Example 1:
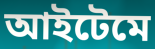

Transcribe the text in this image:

আইটেমে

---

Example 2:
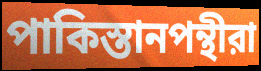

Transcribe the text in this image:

পাকিস্তানপন্থীরা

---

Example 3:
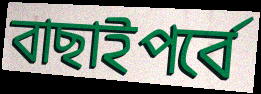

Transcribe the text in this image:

বাছাইপর্বে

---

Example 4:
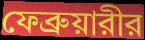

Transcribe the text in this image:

ফেব্রুয়ারীর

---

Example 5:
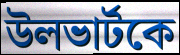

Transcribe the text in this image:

উলভার্টকে